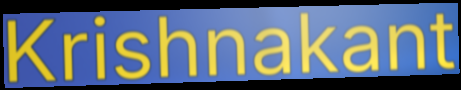
Krishnakant